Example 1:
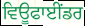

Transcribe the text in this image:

ਵਿਊਫਾਈਂਡਰ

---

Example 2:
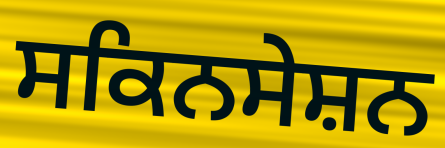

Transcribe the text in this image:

ਸਕਿਨਸੇਸ਼ਨ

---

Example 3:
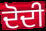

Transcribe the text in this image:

ਦੋਦੀ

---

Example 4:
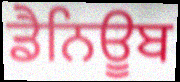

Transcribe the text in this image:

ਡੈਨਿਊਬ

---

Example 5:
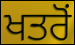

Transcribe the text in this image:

ਖਤਰੋਂ